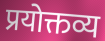
प्रयोक्तव्य